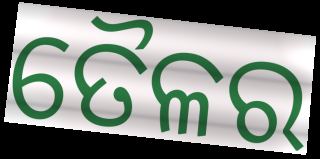
ତୈଳର